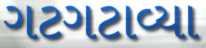
ગટગટાવ્યા